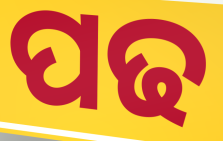
ପଢ